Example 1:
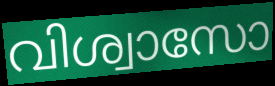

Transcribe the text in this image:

വിശ്വാസോ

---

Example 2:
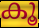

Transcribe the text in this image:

കൂ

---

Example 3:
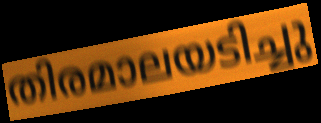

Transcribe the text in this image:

തിരമാലയടിച്ചു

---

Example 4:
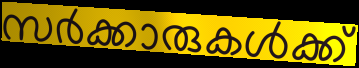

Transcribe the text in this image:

സർക്കാരുകൾക്ക്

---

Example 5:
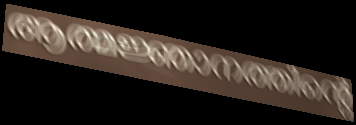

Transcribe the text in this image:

ആത്മജ്ഞാനത്തിന്റെ